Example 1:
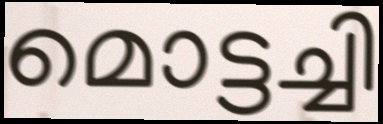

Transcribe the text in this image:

മൊട്ടച്ചി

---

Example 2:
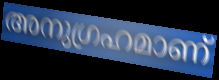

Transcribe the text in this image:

അനുഗ്രഹമാണ്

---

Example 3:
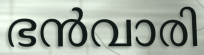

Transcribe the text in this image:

ഭൻവാരി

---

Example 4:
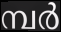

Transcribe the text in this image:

മ്പർ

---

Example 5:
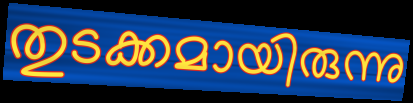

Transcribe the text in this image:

തുടക്കമായിരുന്നു